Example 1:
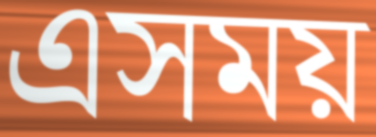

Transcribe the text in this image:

এসময়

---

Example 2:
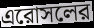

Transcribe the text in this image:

এরোসলের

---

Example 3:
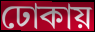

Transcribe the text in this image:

ঢোকায়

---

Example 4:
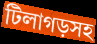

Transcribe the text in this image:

টিলাগড়সহ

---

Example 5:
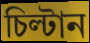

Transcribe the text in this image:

চিল্টান